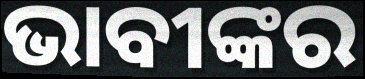
ଭାବୀଙ୍କର